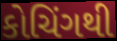
કોચિંગથી